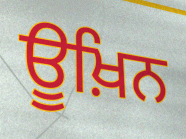
ਊਖ਼ਿਨ